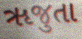
ૠજુતા